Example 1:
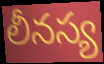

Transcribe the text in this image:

లీనస్య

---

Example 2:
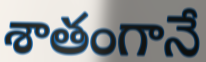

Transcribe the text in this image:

శాతంగానే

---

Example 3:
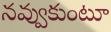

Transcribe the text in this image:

నవ్వుకుంటూ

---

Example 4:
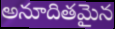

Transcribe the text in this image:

అనూదితమైన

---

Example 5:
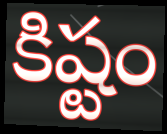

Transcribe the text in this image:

కిష్టం